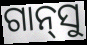
ଗାନ୍‍ସୁ